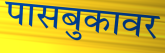
पासबुकावर